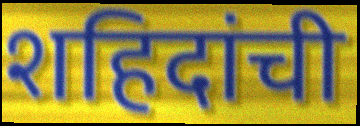
शहिदांची